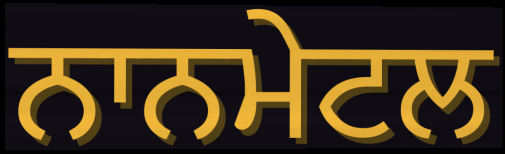
ਨਾਨਮੇਟਲ